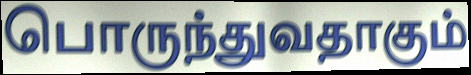
பொருந்துவதாகும்